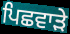
ਪਿਛਵਾੜੇ